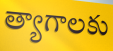
త్యాగాలకు